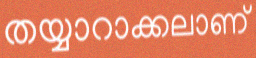
തയ്യാറാക്കലാണ്